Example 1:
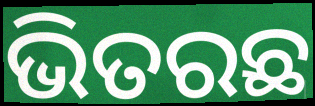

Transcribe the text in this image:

ଭିତରଛ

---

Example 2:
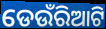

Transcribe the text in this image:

ଡେଉଁରିଆଟି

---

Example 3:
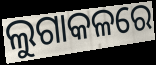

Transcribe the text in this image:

ଲୁଗାକଳରେ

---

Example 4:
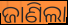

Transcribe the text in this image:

ଜାଣିଲା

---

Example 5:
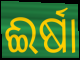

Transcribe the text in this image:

ଈର୍ଷା